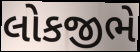
લોકજીભે